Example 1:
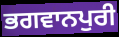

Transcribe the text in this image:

ਭਗਵਾਨਪੁਰੀ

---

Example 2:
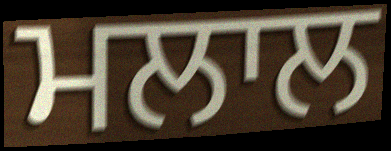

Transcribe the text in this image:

ਮਲਾਲ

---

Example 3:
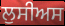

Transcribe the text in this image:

ਲੁਸੀਅਸ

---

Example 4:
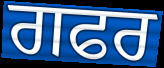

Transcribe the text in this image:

ਗਫਰ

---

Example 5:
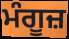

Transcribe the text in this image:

ਮੰਗੂਜ਼